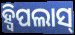
ହ୍ୱିପଲାସ୍